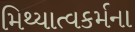
મિથ્યાત્વકર્મના